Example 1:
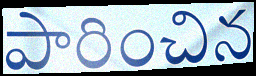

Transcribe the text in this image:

పారించిన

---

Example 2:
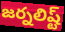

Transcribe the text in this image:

జర్నలిష్ట్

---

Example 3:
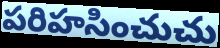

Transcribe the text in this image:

పరిహసించుచు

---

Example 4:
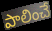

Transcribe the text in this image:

పాలించే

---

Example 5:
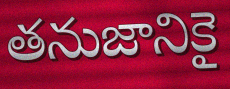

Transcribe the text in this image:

తనుజానికై